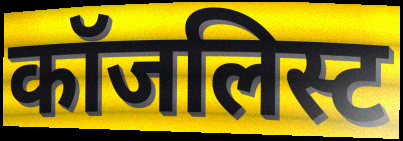
कॉजलिस्ट